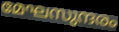
മേഘസുന്ദരം